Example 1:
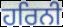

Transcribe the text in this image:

ਹਰਿਨੀ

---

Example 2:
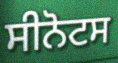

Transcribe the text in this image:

ਸੀਨੋਟਸ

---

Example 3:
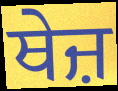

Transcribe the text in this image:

ਥੇਜ਼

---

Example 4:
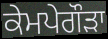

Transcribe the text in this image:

ਕੇਮਪੇਗੌੜਾ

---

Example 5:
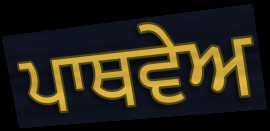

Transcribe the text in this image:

ਪਾਥਵੇਅ